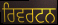
ਰਿਵਰਟਨ